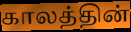
காலத்தின்